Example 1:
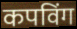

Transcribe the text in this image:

कपविंग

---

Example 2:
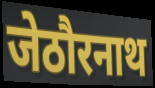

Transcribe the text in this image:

जेठौरनाथ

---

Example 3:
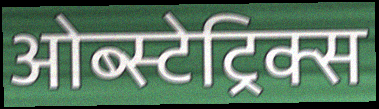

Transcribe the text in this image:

ओब्स्टेट्रिक्स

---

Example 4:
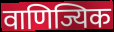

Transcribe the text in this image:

वाणिज्यिक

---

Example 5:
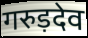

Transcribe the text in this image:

गरुड़देव